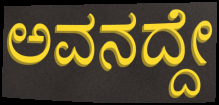
ಅವನದ್ದೇ